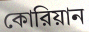
কোরিয়ান